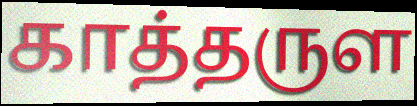
காத்தருள